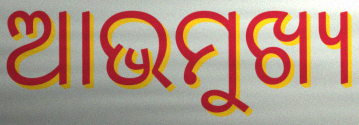
ଆଭମୁଖ୍ୟ